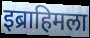
इब्राहिमला